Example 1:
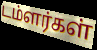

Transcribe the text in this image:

டம்ளர்கள்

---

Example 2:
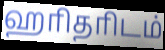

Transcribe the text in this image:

ஹரிதரிடம்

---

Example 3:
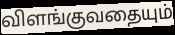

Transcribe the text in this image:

விளங்குவதையும்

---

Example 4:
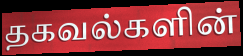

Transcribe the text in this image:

தகவல்களின்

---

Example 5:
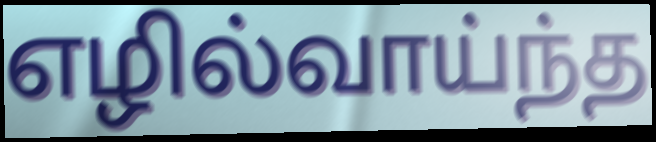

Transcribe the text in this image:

எழில்வாய்ந்த